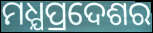
ମଧ୍ଯପ୍ରଦେଶର